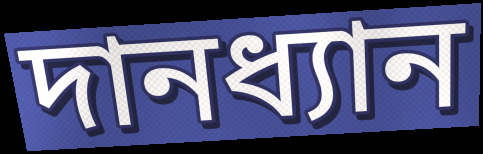
দানধ্যান